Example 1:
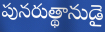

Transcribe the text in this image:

పునరుత్థానుడై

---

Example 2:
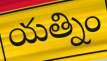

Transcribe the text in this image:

యత్నిం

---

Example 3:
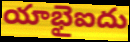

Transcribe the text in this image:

యాభైఐదు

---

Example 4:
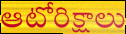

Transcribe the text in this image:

ఆటోరిక్షాలు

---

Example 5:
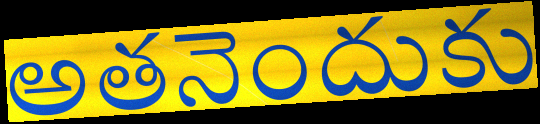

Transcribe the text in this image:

అతనెందుకు